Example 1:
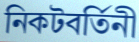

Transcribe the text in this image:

নিকটবর্তিনী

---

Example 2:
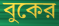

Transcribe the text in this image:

বুকের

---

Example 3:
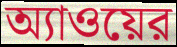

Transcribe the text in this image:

অ্যাওয়ের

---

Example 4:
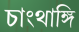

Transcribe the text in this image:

চাংথাঙ্গি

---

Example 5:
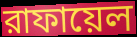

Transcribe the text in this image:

রাফায়েল